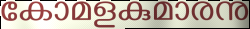
കോമളകുമാരനു